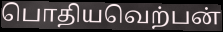
பொதியவெற்பன்